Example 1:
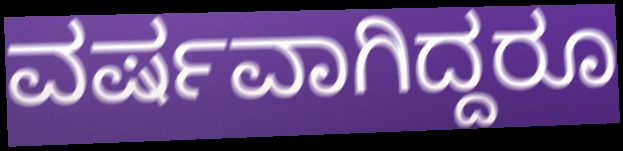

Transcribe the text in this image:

ವರ್ಷವಾಗಿದ್ದರೂ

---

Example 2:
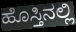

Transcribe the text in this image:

ಹೊಸ್ತಿನಲ್ಲಿ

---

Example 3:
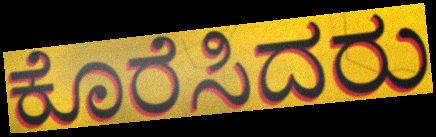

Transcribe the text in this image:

ಕೊರೆಸಿದರು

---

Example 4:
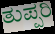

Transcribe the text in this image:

ತುಪ್ಪರಿ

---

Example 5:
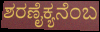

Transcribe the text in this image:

ಶರಣೈಕ್ಯನೆಂಬ